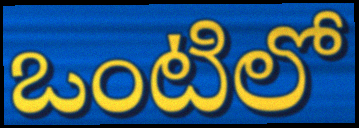
ఒంటిలో